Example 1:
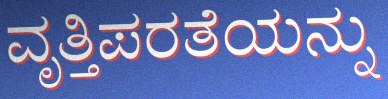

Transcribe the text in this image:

ವೃತ್ತಿಪರತೆಯನ್ನು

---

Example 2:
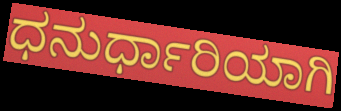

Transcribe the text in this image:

ಧನುರ್ಧಾರಿಯಾಗಿ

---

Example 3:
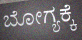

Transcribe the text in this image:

ಬೋಗ್ಯಕ್ಕೆ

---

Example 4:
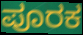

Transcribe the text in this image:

ಪೂರಕ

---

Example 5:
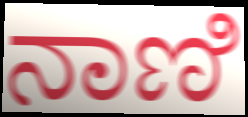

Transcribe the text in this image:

ನಾಣಿ